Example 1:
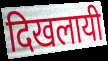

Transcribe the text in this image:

दिखलायी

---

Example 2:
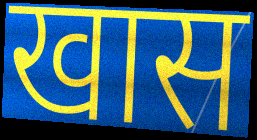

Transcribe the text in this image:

खास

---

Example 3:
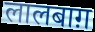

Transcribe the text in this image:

लालबाग़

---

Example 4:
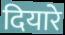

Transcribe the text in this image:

दियारे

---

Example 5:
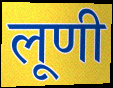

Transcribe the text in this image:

लूणी